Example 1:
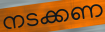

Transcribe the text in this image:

നടക്കണ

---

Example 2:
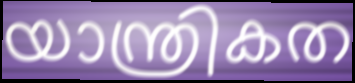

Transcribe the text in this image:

യാന്ത്രികത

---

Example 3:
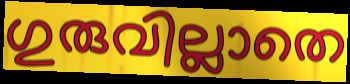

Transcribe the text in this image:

ഗുരുവില്ലാതെ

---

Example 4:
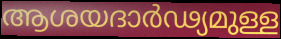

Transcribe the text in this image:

ആശയദാർഢ്യമുള്ള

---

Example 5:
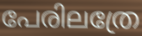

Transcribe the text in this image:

പേരിലത്രേ